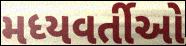
મધ્યવર્તીઓ